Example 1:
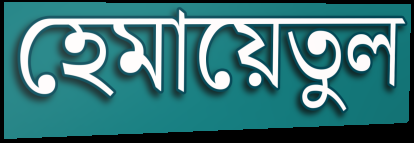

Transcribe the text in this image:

হেমায়েতুল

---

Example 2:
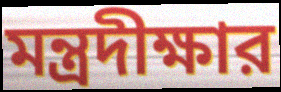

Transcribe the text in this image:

মন্ত্রদীক্ষার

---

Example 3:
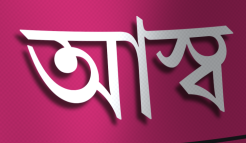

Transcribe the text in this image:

আস্ব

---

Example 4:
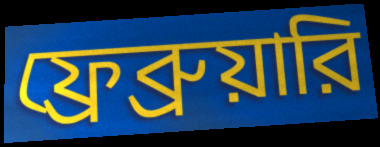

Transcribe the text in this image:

ফ্রেব্রুয়ারি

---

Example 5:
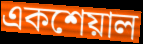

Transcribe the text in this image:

একশেয়াল